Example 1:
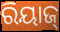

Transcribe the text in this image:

ରିୟାଜ୍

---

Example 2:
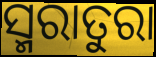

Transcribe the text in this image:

ସ୍ମରାତୁରା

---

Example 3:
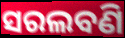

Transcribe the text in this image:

ସରଲବଣି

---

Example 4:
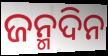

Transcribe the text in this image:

ଜନ୍ମଦିନ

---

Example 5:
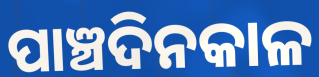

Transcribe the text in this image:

ପାଞ୍ଚଦିନକାଳ